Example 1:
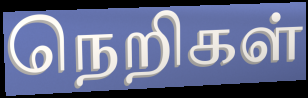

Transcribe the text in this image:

நெறிகள்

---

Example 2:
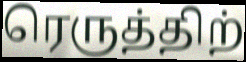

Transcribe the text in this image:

ரெருத்திற்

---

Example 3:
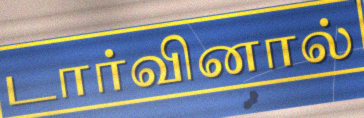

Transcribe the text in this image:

டார்வினால்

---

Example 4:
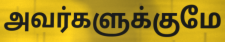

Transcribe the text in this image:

அவர்களுக்குமே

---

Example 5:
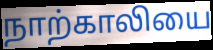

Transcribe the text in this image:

நாற்காலியை